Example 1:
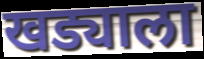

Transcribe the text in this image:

खड्याला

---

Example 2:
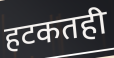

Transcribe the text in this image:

हटकतही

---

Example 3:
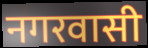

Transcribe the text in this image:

नगरवासी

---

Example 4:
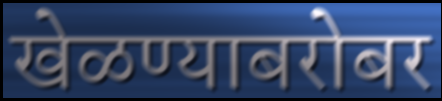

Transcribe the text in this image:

खेळण्याबरोबर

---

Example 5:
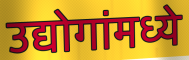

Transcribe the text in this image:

उद्योगांमध्ये